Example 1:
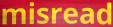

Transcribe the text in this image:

misread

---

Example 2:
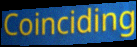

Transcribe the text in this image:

Coinciding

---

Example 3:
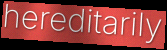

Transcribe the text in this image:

hereditarily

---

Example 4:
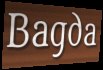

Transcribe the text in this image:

Bagda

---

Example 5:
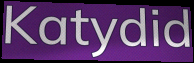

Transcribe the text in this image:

Katydid